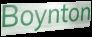
Boynton